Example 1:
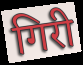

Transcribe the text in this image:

गिरी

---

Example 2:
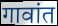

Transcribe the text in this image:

गावांत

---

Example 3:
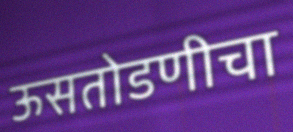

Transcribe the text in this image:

ऊसतोडणीचा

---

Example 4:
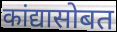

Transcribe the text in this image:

कांद्यासोबत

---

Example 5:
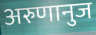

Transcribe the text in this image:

अरुणानुज